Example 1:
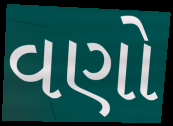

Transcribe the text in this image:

વણો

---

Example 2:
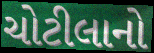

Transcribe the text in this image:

ચોટીલાનો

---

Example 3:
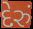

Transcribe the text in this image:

દેરું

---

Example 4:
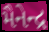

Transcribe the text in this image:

મૈનેન્દ્ર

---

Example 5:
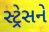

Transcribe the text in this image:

સ્ટ્રેસને